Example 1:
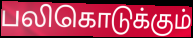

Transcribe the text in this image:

பலிகொடுக்கும்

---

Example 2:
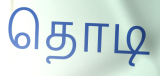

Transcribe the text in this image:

தொடி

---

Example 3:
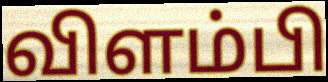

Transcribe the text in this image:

விளம்பி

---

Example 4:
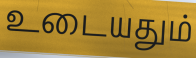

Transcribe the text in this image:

உடையதும்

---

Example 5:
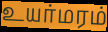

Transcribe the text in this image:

உயர்மரம்